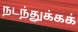
நடந்துக்கக்